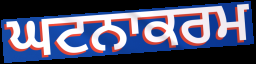
ਘਟਨਾਕਰਮ